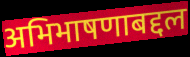
अभिभाषणाबद्दल